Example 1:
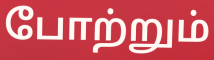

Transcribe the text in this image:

போற்றும்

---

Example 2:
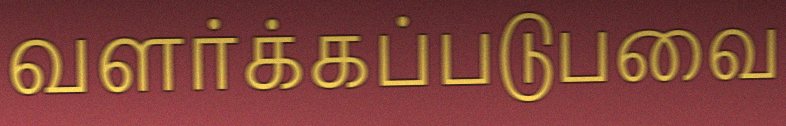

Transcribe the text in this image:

வளர்க்கப்படுபவை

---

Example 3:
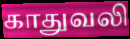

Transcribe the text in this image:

காதுவலி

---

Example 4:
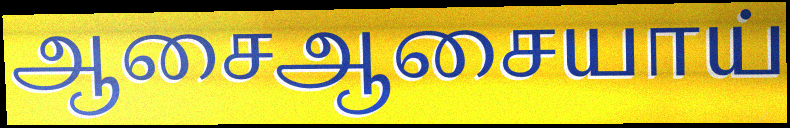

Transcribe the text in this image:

ஆசைஆசையாய்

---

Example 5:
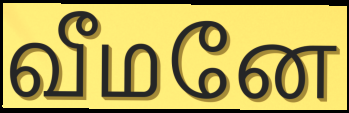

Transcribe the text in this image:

வீமனே